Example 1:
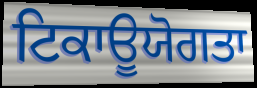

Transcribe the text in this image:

ਟਿਕਾਊਯੋਗਤਾ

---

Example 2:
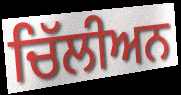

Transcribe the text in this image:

ਚਿੱਲੀਅਨ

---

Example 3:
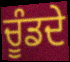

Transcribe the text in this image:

ਚੂੰਡਦੇ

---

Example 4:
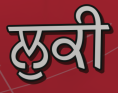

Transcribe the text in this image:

ਲੁਕੀ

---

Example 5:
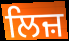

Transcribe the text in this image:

ਲਿਜ਼